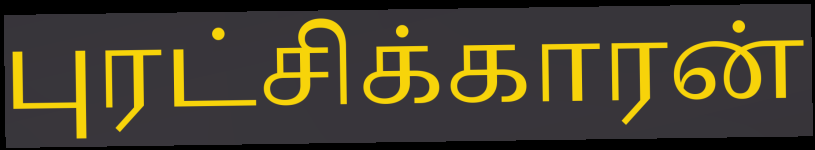
புரட்சிக்காரன்